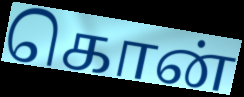
கொன்